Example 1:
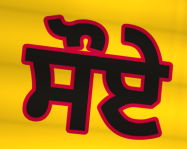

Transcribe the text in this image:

ਸੌਏ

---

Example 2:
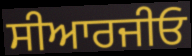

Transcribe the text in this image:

ਸੀਆਰਜੀਓ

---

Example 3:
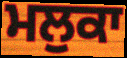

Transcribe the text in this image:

ਮਲੁਕਾ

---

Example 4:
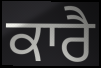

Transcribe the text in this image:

ਕਾਰੈ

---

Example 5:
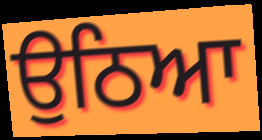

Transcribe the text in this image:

ਉਠਿਆ